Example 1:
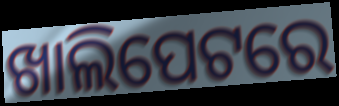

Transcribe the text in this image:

ଖାଲିପେଟରେ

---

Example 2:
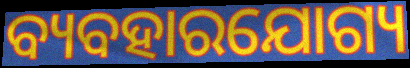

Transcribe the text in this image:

ବ୍ୟବହାରଯୋଗ୍ୟ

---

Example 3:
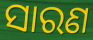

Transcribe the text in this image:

ସାରଣ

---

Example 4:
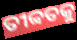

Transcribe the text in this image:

ତୀବ୍ବତକୁ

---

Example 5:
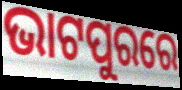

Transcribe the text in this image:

ଭାଟପୁରରେ